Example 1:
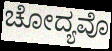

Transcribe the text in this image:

ಚೋದ್ಯವೊ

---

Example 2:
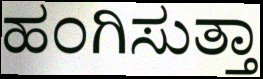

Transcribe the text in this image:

ಹಂಗಿಸುತ್ತಾ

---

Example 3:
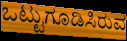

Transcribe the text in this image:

ಒಟ್ಟುಗೂಡಿಸಿರುವ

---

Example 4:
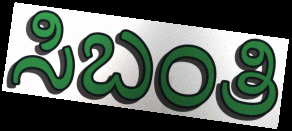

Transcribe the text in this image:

ಸಿಬಂತಿ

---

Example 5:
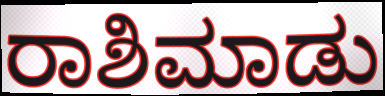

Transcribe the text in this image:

ರಾಶಿಮಾಡು